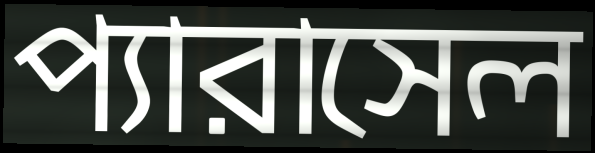
প্যারাসেল